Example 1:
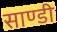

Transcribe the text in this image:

साण्डी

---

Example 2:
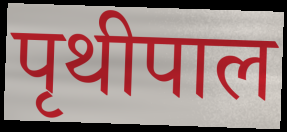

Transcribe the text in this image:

पृथीपाल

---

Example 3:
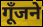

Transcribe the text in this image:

गूँजने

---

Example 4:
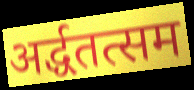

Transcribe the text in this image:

अर्द्धतत्सम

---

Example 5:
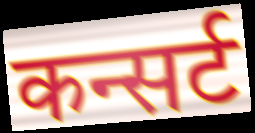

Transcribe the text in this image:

कन्सर्ट